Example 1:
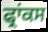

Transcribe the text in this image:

ਫ੍ਰਾਂਕਸ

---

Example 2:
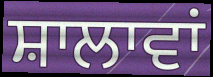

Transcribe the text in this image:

ਸ਼ਾਲਾਵਾਂ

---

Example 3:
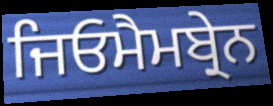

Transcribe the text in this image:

ਜਿਓਮੈਮਬ੍ਰੇਨ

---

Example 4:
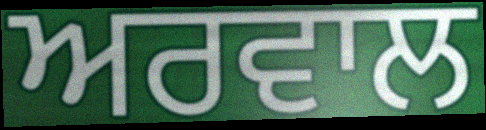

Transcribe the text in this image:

ਅਰਵਾਲ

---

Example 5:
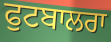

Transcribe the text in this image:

ਫੁਟਬਾਲਰਾ